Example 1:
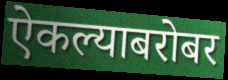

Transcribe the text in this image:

ऐकल्याबरोबर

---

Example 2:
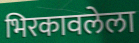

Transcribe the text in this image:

भिरकावलेला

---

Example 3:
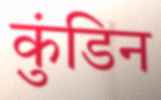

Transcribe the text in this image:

कुंडिन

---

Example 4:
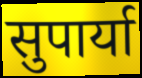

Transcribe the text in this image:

सुपार्या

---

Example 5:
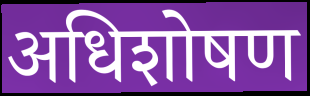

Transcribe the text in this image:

अधिशोषण